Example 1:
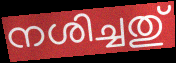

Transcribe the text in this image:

നശിച്ചതു്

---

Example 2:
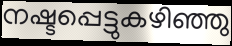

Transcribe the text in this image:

നഷ്ടപ്പെട്ടുകഴിഞ്ഞു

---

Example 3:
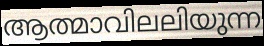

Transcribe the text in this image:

ആത്മാവിലലിയുന്ന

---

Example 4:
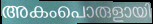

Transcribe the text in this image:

അകംപൊരുളായി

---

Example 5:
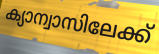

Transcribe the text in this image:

ക്യാന്വാസിലേക്ക്